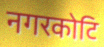
नगरकोटि